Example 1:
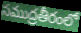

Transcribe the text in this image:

సముద్రతీరంలో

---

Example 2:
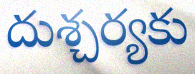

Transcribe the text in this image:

దుశ్చర్యకు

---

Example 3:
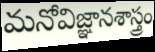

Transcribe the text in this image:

మనోవిజ్ఞానశాస్త్రం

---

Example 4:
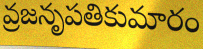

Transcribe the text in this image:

వ్రజనృపతికుమారం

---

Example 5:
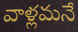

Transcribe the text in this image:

వాళ్లమనే